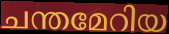
ചന്തമേറിയ